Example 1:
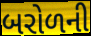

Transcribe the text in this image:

બરોળની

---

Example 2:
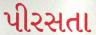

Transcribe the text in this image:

પીરસતા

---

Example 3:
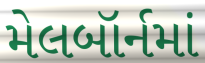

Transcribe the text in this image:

મેલબૉર્નમાં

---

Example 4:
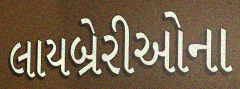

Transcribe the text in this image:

લાયબ્રેરીઓના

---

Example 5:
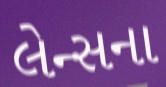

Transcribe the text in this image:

લેન્સના